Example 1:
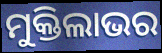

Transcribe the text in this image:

ମୁକ୍ତିଲାଭର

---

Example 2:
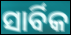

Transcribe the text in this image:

ସାର୍ବିକ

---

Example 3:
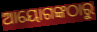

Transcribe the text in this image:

ଆୟୋଗଙ୍କଠାରୁ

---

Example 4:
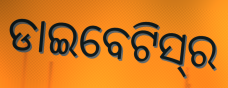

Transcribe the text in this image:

ଡାଇବେଟିସ୍‌ର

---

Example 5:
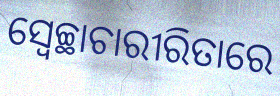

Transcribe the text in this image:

ସ୍ଵେଚ୍ଛାଚାରୀରିତାରେ